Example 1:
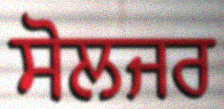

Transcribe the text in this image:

ਸੋਲਜਰ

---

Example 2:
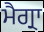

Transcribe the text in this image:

ਮੈਗ੍ਰਾ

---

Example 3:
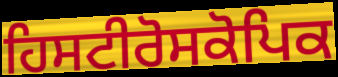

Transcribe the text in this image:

ਹਿਸਟੀਰੋਸਕੋਪਿਕ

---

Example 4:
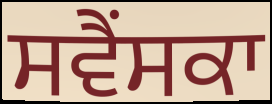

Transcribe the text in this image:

ਸਵੈਂਸਕਾ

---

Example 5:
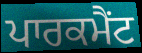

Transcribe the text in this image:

ਪਾਰਕਮੈਂਟ